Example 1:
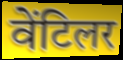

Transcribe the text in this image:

वेंटिलर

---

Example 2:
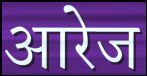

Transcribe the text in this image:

आरेज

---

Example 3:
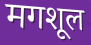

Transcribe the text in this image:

मगशूल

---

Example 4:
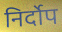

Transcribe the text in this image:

निर्दोप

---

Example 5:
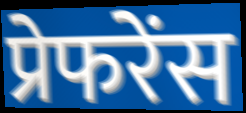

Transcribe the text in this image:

प्रेफरेंस